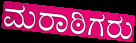
ಮರಾಠಿಗರು